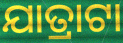
ଯାତ୍ରାଟା